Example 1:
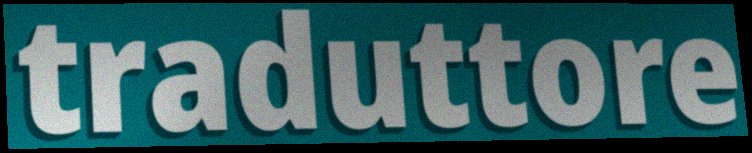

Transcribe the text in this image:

traduttore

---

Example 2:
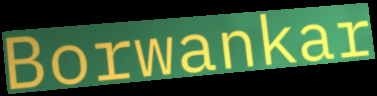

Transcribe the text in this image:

Borwankar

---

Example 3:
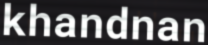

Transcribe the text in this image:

khandnan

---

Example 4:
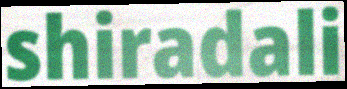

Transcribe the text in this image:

shiradali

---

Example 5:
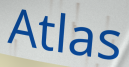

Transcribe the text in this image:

Atlas